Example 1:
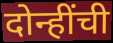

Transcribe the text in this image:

दोन्हींची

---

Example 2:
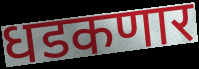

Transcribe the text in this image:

धडकणार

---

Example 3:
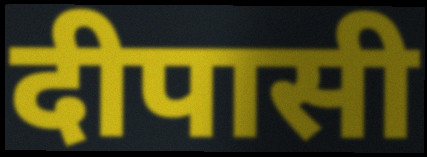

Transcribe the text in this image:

दीपासी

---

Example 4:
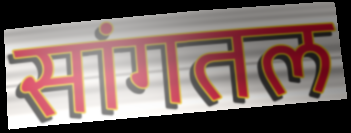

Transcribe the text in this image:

सांगतल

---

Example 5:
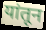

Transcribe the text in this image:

यांतून